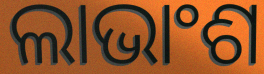
ଲାଭାଂଶ